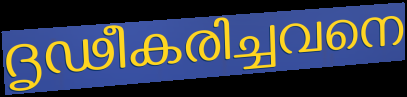
ദൃഢീകരിച്ചവനെ